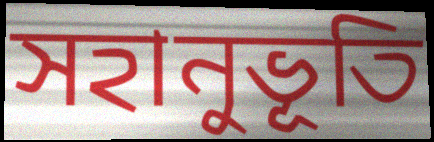
সহানুভূতি